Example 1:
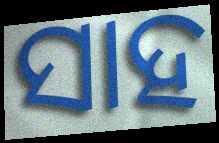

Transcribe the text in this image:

ସାହ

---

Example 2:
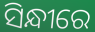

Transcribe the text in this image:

ସିନ୍ଧୀରେ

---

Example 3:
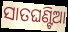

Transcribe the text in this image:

ସାତଘଣ୍ଟିଆ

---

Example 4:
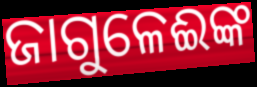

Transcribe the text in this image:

ଜାଗୁଳେଈଙ୍କ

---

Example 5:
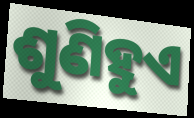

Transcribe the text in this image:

ଶୁଣିହୁଏ